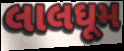
લાલઘૂમ